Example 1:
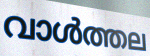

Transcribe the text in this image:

വാൾത്തല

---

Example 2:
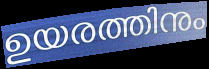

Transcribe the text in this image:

ഉയരത്തിനും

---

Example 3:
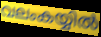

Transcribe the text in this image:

വലംകയ്യിൽ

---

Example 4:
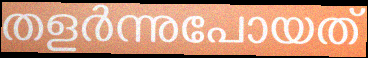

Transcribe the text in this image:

തളർന്നുപോയത്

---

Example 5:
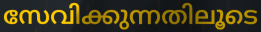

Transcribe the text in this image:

സേവിക്കുന്നതിലൂടെ